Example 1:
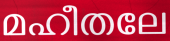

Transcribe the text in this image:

മഹീതലേ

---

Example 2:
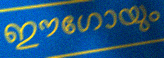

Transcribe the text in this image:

ഈഗോയും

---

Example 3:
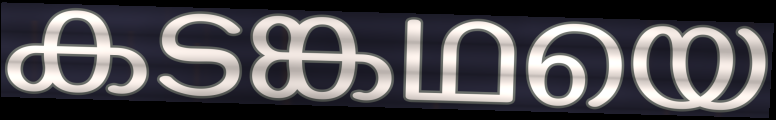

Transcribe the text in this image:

കടങ്കഥയെ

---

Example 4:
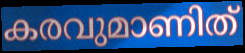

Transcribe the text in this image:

കരവുമാണിത്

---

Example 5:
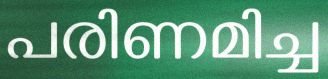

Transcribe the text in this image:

പരിണമിച്ച